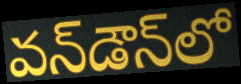
వన్‌డౌన్‌లో